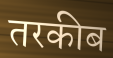
तरकीब